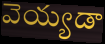
వెయ్యడా